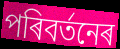
পৰিবৰ্তনেৰ